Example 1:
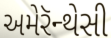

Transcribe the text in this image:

અમેરૅન્થેસી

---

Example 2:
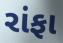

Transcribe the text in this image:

રાંફા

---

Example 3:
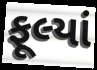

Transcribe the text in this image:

ફૂલ્યાં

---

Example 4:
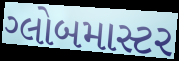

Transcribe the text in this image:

ગ્લોબમાસ્ટર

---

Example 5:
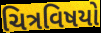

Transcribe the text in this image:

ચિત્રવિષયો